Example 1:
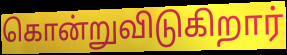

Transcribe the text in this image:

கொன்றுவிடுகிறார்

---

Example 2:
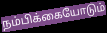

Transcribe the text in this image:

நம்பிக்கையோடும்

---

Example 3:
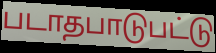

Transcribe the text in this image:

படாதபாடுபட்டு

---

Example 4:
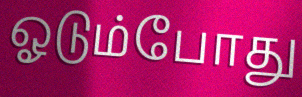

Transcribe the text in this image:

ஓடும்போது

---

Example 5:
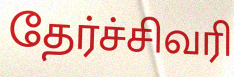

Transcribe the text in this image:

தேர்ச்சிவரி